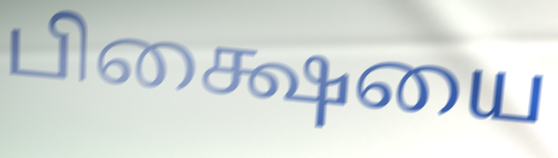
பிக்ஷையை